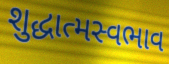
શુદ્ધાત્મસ્વભાવ